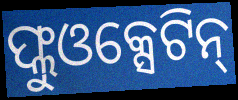
ଫ୍ଲୁଓକ୍ସେଟିନ୍